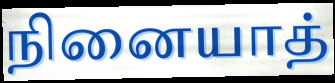
நினையாத்